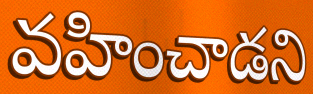
వహించాడని